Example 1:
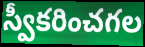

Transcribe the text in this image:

స్వీకరించగల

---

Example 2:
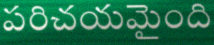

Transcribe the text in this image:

పరిచయమైంది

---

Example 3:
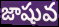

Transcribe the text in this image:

జాషువ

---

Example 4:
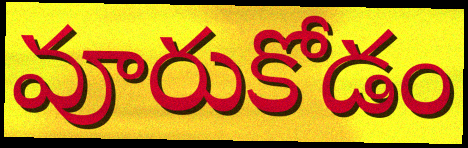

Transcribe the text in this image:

వూరుకోడం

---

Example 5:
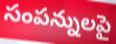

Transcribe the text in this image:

సంపన్నులపై